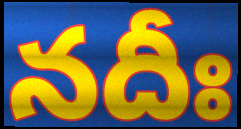
నదీః